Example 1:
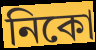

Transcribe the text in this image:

নিকো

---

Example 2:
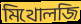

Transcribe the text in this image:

মিথোলজি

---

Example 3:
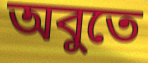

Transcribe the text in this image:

অবুতে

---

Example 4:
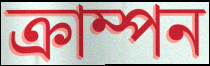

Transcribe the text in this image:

ক্রাম্পন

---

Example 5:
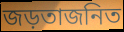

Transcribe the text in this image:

জড়তাজনিত